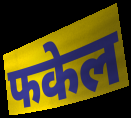
फकेल